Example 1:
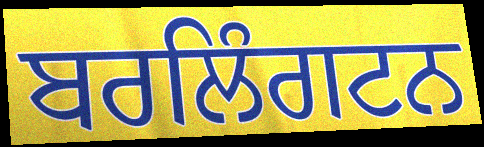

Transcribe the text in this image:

ਬਰਲਿੰਗਟਨ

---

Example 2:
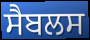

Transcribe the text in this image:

ਸੈਬਲਸ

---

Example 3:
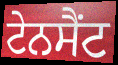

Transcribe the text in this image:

ਟੇਨਸੈਂਟ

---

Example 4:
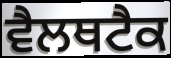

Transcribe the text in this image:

ਵੈਲਥਟੈਕ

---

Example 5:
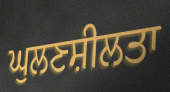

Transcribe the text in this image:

ਘੁਲਣਸ਼ੀਲਤਾ